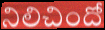
నిలిచిందో